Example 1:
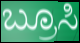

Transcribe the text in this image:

ಬ್ರೂಸಿ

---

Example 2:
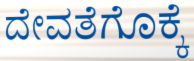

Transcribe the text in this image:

ದೇವತೆಗೊಕ್ಕೆ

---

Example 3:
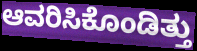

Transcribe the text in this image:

ಆವರಿಸಿಕೊಂಡಿತ್ತು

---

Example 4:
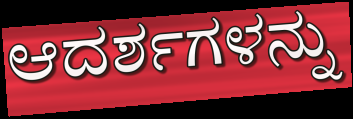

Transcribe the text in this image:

ಆದರ್ಶಗಳನ್ನು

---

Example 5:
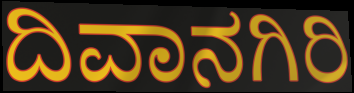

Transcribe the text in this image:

ದಿವಾನಗಿರಿ